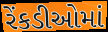
રેંકડીઓમાં